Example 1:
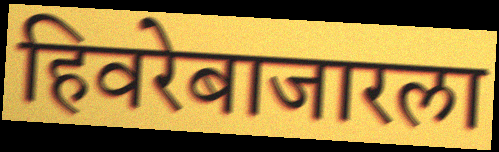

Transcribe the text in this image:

हिवरेबाजारला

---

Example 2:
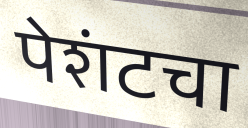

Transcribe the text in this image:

पेशंटचा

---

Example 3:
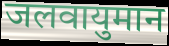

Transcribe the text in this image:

जलवायुमान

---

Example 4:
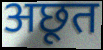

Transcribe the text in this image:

अछूत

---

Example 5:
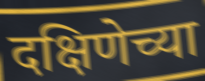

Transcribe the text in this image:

दक्षिणेच्या